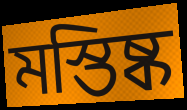
মস্তিষ্ক